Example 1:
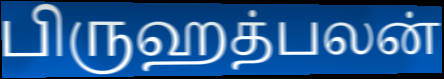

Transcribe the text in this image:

பிருஹத்பலன்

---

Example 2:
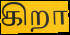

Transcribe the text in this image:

கிறா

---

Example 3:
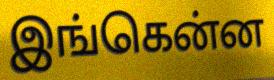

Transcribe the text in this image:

இங்கென்ன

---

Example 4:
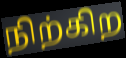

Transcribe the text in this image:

நிற்கிற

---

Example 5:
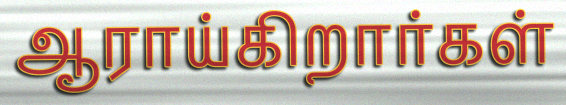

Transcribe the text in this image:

ஆராய்கிறார்கள்